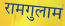
रामगुलाम